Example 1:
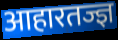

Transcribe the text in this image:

आहारतज्ज्ञ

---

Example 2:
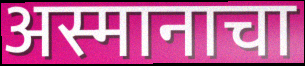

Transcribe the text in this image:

अस्मानाचा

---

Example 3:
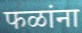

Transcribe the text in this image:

फळांना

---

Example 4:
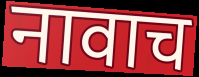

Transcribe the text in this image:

नावाच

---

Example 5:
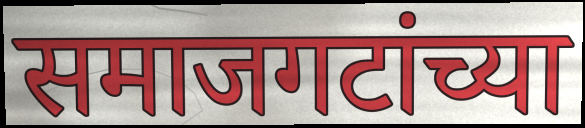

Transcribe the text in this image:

समाजगटांच्या